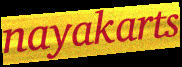
nayakarts